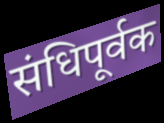
संधिपूर्वक